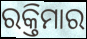
ରକ୍ତିମାର